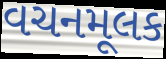
વચનમૂલક